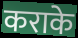
कराके